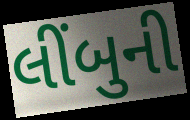
લીંબુની